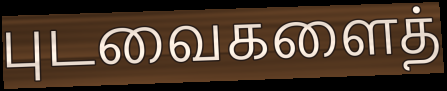
புடவைகளைத்